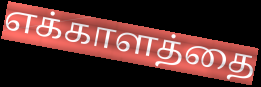
எக்காளத்தை